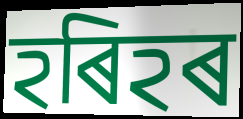
হৰিহৰ